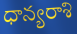
ధాన్యరాశి